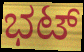
ಭಟ್